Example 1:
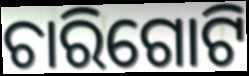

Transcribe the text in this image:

ଚାରିଗୋଟି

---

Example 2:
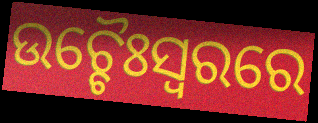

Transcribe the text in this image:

ଉଚ୍ଚୈଃସ୍ୱରରେ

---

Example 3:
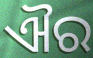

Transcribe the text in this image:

ଐର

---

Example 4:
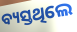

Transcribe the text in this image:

ବ୍ୟସ୍ତଥିଲେ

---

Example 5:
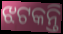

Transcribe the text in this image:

ଝଟକନ୍ତି